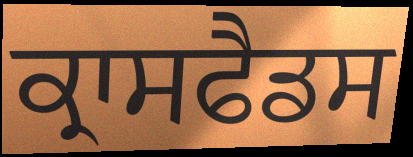
ਕ੍ਰਾਸਫੈਡਸ